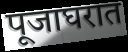
पूजाघरात